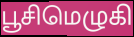
பூசிமெழுகி